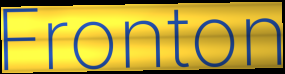
Fronton